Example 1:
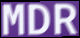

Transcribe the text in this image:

MDR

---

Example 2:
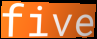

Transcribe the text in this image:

five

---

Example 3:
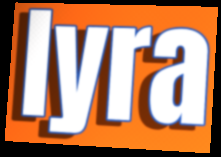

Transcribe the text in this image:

lyra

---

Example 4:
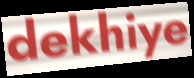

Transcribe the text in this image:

dekhiye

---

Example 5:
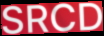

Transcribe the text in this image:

SRCD